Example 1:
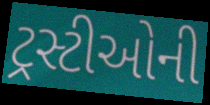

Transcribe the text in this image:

ટ્રસ્ટીઓની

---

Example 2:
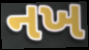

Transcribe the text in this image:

નખ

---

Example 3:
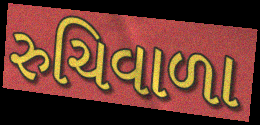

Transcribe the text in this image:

રુચિવાળા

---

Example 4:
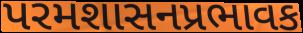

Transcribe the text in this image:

પરમશાસનપ્રભાવક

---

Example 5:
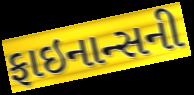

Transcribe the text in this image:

ફાઇનાન્સની